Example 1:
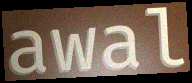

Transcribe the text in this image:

awal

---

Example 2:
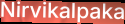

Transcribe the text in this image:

Nirvikalpaka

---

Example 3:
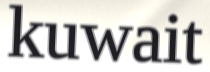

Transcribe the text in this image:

kuwait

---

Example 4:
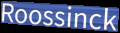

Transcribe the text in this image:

Roossinck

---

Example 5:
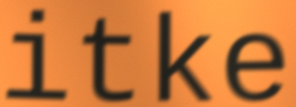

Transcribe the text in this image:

itke